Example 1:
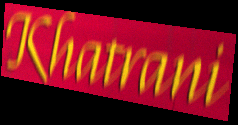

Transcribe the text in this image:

Khatrani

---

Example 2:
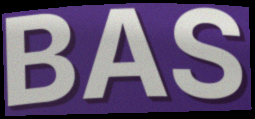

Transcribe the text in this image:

BAS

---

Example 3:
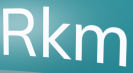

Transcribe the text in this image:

Rkm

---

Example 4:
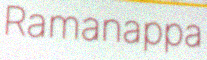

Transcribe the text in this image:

Ramanappa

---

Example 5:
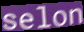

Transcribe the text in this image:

selon